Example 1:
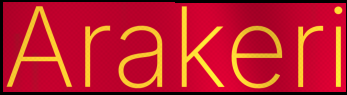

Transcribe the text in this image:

Arakeri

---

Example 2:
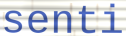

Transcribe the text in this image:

senti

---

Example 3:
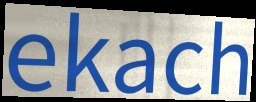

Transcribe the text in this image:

ekach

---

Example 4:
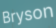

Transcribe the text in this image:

Bryson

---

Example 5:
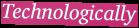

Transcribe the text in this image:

Technologically